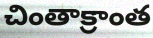
చింతాక్రాంత